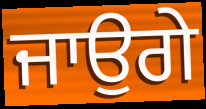
ਜਾਉਗੇ